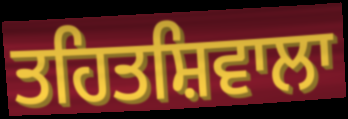
ਤਹਿਤਸ਼ਿਵਾਲਾ